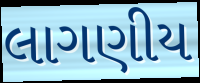
લાગણીય